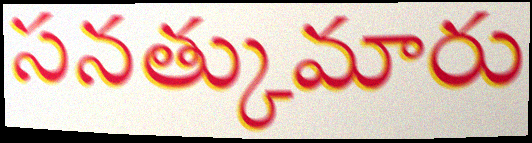
సనత్కుమారు